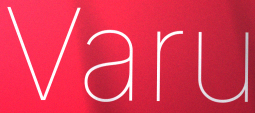
Varu